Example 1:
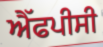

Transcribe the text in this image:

ਐੱਫਪੀਸੀ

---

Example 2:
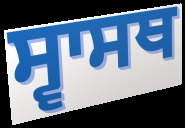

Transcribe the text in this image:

ਸ੍ਵਾਸਥ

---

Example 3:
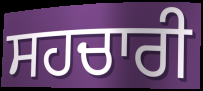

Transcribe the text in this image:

ਸਹਚਾਰੀ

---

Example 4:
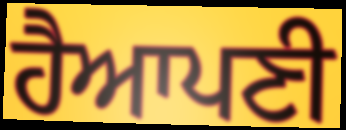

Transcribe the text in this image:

ਹੈਆਪਣੀ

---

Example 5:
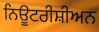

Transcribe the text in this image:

ਨਿਊਟਰੀਸ਼ੀਅਨ